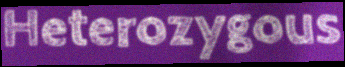
Heterozygous